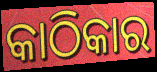
କାଠିକାର